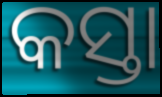
କସ୍ତା